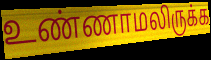
உண்ணாமலிருக்க